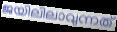
ജയിലിലാവുന്നത്